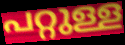
പറ്റുള്ള